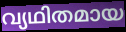
വ്യഥിതമായ